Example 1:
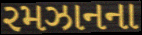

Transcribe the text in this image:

રમઝાનના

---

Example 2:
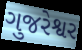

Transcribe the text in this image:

ગુજરેશ્વર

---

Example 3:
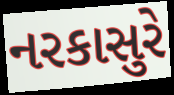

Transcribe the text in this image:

નરકાસુરે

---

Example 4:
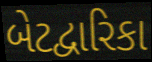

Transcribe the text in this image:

બેટદ્વારિકા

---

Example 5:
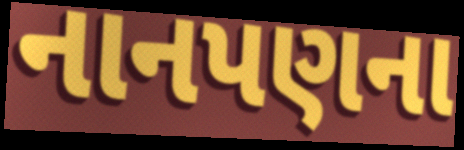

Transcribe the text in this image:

નાનપણના